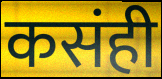
कसंही